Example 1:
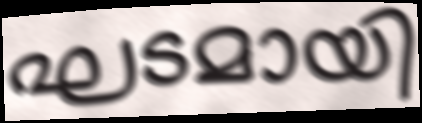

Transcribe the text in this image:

ഘടമായി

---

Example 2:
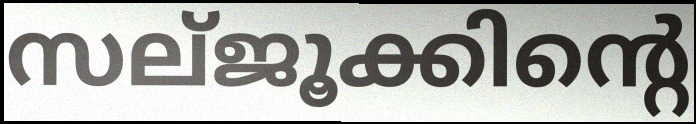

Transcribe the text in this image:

സല്ജൂക്കിന്റെ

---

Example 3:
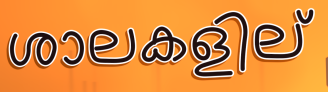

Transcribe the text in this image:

ശാലകളില്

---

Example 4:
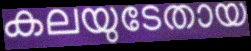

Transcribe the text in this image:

കലയുടേതായ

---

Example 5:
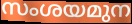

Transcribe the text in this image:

സംശയമുന